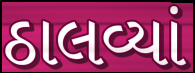
ઠાલવ્યાં